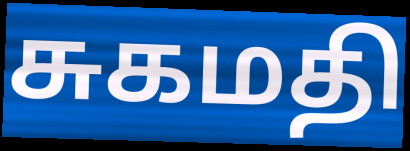
சுகமதி